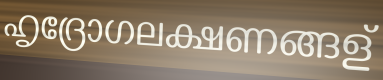
ഹൃദ്രോഗലക്ഷണങ്ങള്